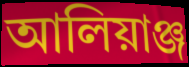
আলিয়াঞ্জ